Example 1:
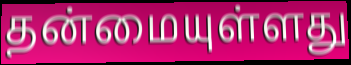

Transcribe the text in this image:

தன்மையுள்ளது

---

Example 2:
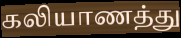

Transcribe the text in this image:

கலியாணத்து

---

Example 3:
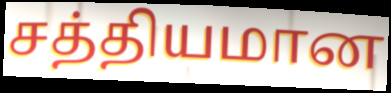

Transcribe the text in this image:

சத்தியமான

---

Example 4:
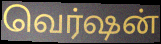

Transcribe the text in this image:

வெர்ஷன்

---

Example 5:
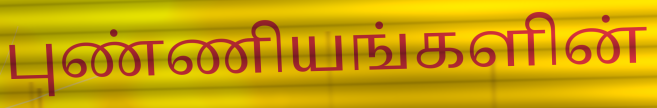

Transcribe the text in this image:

புண்ணியங்களின்